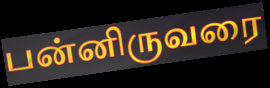
பன்னிருவரை